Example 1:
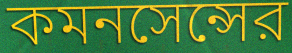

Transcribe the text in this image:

কমনসেন্সের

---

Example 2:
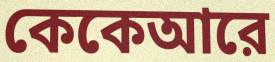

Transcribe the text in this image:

কেকেআরে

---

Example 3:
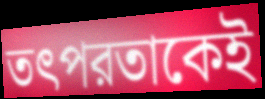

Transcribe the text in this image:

তৎপরতাকেই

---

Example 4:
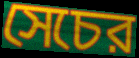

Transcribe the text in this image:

সেচের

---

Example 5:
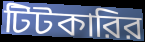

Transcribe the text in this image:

টিটকারির